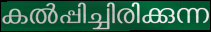
കൽപ്പിച്ചിരിക്കുന്ന